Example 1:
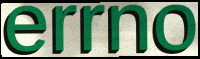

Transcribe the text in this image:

errno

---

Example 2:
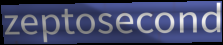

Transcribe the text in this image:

zeptosecond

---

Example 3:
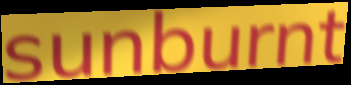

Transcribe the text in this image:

sunburnt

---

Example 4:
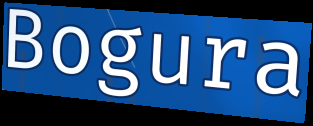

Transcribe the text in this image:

Bogura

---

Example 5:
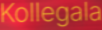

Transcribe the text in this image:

Kollegala